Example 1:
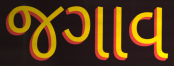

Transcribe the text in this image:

જગાવ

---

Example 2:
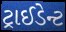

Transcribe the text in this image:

ટ્રાઈડેન્ટ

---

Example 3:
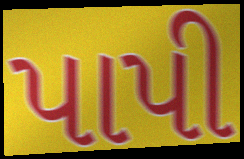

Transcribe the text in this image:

પાપી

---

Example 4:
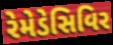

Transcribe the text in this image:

રેમેડેસિવિર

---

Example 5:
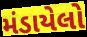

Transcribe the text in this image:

મંડાયેલો